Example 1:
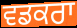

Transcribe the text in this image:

ਵਡਕਰਾ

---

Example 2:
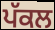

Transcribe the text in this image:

ਪੱਕਲ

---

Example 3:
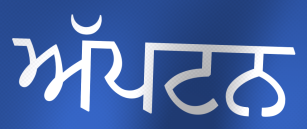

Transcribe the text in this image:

ਅੱਪਟਨ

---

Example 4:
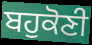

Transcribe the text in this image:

ਬਹੁਕੋਣੀ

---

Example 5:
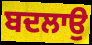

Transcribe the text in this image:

ਬਦਲਾਉ